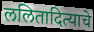
ललितादित्याचे